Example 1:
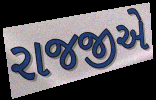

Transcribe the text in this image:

રાજજીએ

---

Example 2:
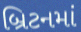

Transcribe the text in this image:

બ્રિટનમાં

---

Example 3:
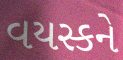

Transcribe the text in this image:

વયસ્કને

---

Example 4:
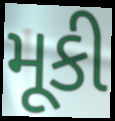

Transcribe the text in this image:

મૂકી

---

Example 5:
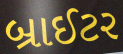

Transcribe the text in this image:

બ્રાઈટર